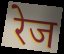
रेज